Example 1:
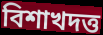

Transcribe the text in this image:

বিশাখদত্ত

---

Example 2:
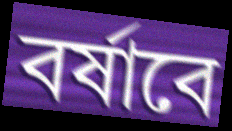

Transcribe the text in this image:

বর্ষাবে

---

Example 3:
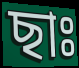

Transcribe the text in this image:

ছাঃ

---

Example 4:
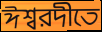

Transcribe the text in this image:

ঈশ্বরদীতে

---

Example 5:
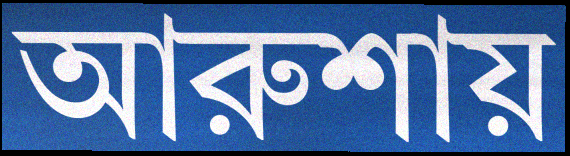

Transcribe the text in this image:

আরুশায়